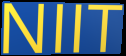
NIIT